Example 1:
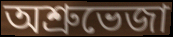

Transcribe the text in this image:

অশ্রুভেজা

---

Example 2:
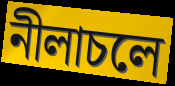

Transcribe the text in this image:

নীলাচলে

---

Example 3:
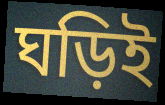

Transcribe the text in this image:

ঘড়িই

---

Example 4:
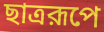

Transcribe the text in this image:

ছাত্ররূপে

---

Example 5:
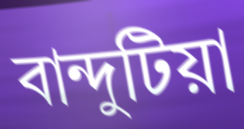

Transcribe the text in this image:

বান্দুটিয়া